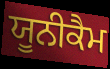
ਯੂਨੀਕੈਮ